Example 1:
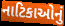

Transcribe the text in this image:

નાટિકાઓનું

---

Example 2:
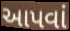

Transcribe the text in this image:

આપવાં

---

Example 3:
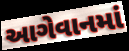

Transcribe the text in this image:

આગેવાનમાં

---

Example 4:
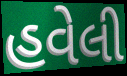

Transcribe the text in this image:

હવેલી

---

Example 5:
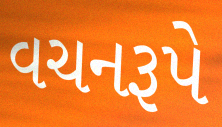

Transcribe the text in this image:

વચનરૂપે